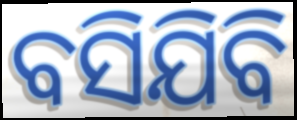
ବସିଯିବି